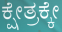
ಕ್ಷೇತ್ರಕ್ಕೇ